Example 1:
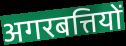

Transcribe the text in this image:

अगरबत्तियों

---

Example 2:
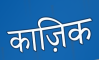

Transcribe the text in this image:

काज़िक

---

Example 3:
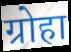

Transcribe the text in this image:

ग्रोहा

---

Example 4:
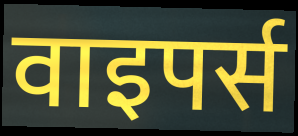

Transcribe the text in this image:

वाइपर्स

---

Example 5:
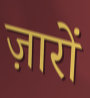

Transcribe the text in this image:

ज़ारों